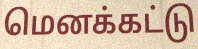
மெனக்கட்டு